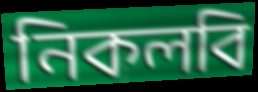
নিকলবি